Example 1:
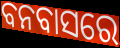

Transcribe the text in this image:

ବନବାସରେ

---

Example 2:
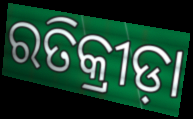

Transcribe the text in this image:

ରତିକ୍ରୀଡ଼ା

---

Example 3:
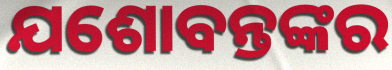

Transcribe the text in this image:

ଯଶୋବନ୍ତଙ୍କର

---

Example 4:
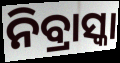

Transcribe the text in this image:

ନିବ୍ରାସ୍କା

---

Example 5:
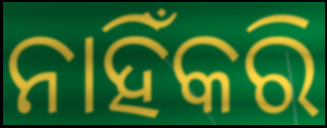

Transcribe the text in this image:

ନାହିଁକରି